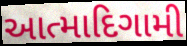
આત્માદિગામી